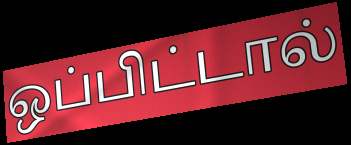
ஒப்பிட்டால்